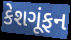
કેશગૂંફન